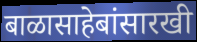
बाळासाहेबांसारखी